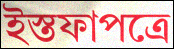
ইস্তফাপত্রে